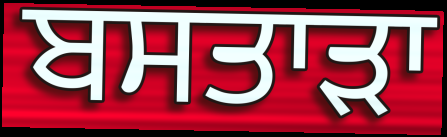
ਬਸਤਾੜਾ